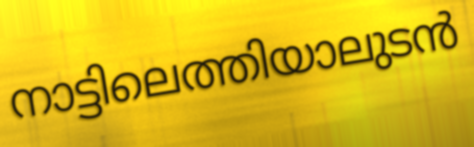
നാട്ടിലെത്തിയാലുടൻ